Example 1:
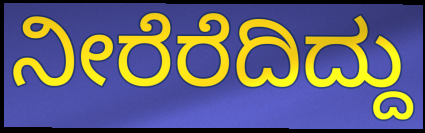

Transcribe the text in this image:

ನೀರೆರೆದಿದ್ದು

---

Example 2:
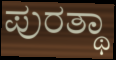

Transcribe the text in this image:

ಪುರತ್ಥಾ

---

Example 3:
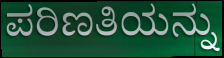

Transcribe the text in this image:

ಪರಿಣತಿಯನ್ನು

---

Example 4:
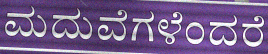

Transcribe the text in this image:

ಮದುವೆಗಳೆಂದರೆ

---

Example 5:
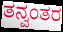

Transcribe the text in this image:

ತನ್ವಂತರ